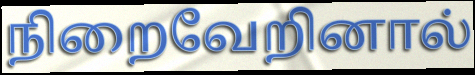
நிறைவேறினால்